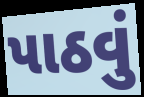
પાઠવું